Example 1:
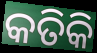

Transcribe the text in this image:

କତିକି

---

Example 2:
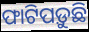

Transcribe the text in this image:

ଫାଟିପଡ଼ୁଛି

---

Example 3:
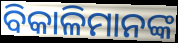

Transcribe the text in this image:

ବିକାଳିମାନଙ୍କ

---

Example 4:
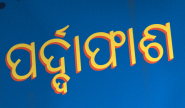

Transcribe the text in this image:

ପର୍ଦ୍ଦାଫାଶ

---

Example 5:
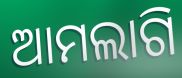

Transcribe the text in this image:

ଆମଲାଗି